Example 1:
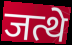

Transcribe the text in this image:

जत्थे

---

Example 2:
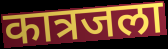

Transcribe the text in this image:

कात्रजला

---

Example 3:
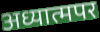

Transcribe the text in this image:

अध्यात्मपर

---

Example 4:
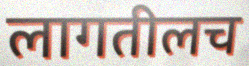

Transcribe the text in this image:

लागतीलच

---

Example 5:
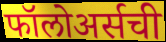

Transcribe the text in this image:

फॉलोअर्सची